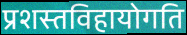
प्रशस्तविहायोगति